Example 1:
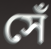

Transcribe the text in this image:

সেঁ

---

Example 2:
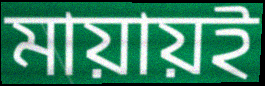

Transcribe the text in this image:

মায়ায়ই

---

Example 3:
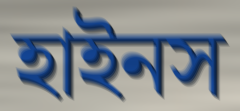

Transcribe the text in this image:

হাইনস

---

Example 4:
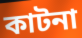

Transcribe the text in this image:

কাটনা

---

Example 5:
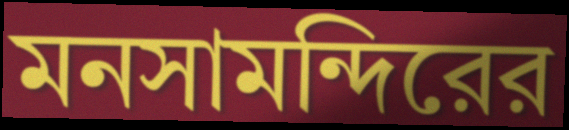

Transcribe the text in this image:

মনসামন্দিরের